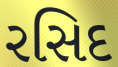
રસિદ